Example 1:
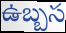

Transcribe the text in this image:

ఉబ్బస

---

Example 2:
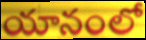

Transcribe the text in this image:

యానంలో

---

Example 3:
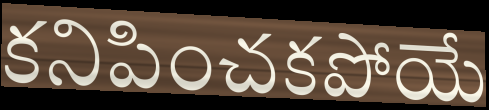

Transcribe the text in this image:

కనిపించకపోయే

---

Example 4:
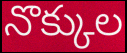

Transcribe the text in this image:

నొక్కుల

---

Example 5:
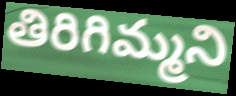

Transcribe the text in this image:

తిరిగిమ్మని